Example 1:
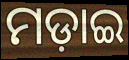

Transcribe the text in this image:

ମଡ଼ାଇ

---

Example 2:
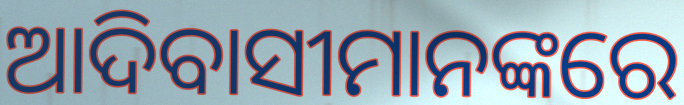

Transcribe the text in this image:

ଆଦିବାସୀମାନଙ୍କରେ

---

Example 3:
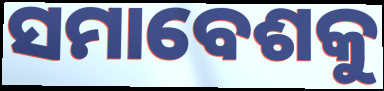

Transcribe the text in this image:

ସମାବେଶକୁ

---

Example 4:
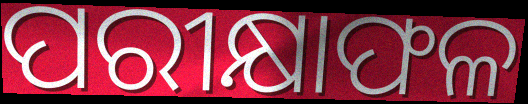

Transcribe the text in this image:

ପରୀକ୍ଷାଫଳ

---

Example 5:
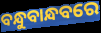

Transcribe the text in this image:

ବନ୍ଧୁବାନ୍ଧବରେ